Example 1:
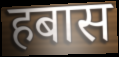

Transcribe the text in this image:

हबास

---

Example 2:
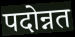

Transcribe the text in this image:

पदोन्नत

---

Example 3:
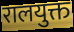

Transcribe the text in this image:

रालयुक्त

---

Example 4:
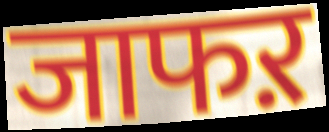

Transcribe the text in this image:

जाफऱ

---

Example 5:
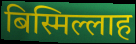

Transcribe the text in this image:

बिस्मिल्‍लाह